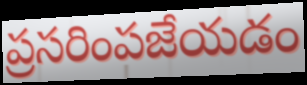
ప్రసరింపజేయడం